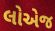
લોએજ